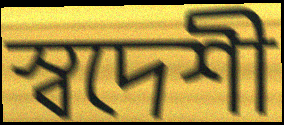
স্বদেশী